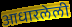
आधारलेली